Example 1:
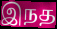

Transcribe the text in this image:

இநத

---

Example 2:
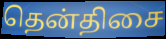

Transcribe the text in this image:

தென்திசை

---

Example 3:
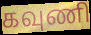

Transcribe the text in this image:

கவுணி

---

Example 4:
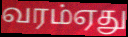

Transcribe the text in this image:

வரம்ஏது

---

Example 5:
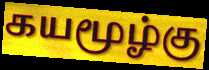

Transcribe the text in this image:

கயமூழ்கு